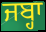
ਜਬ੍ਹਾ